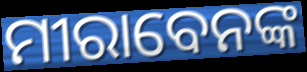
ମୀରାବେନଙ୍କ